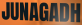
JUNAGADH